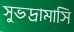
সুভদ্রামাসি